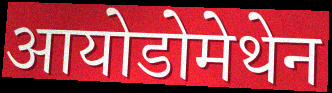
आयोडोमेथेन